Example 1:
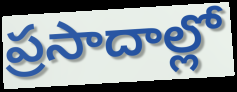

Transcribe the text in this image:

ప్రసాదాల్లో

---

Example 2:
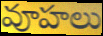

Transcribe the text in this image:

వూహలు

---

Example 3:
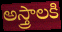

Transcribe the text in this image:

అస్త్రాలకి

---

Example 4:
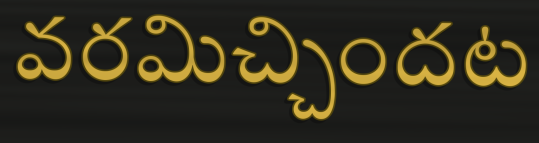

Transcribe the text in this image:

వరమిచ్చిందట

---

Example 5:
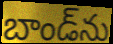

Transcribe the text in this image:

బాండ్‌ను